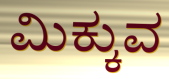
ಮಿಕ್ಕುವ